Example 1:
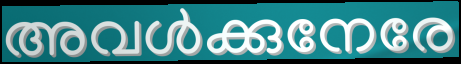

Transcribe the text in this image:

അവൾക്കുനേരേ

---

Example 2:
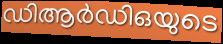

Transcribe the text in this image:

ഡിആർഡിഒയുടെ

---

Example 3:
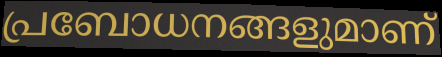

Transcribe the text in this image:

പ്രബോധനങ്ങളുമാണ്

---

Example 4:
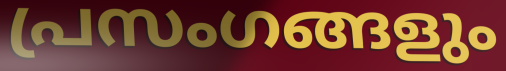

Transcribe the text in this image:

പ്രസംഗങ്ങളും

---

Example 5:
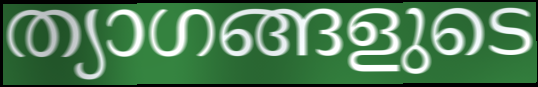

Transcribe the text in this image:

ത്യാഗങ്ങളുടെ